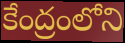
కేంద్రంలోని